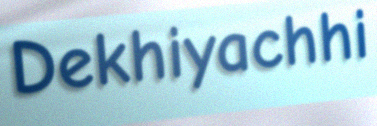
Dekhiyachhi